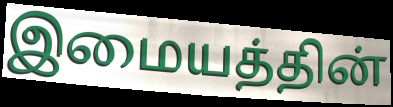
இமையத்தின்